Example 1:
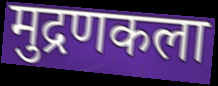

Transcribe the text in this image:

मुद्रणकला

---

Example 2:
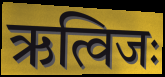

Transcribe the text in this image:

ऋत्विजः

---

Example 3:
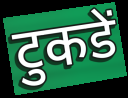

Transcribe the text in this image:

टुकडें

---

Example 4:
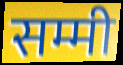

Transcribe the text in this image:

सम्मी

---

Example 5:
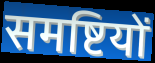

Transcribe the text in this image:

समष्टियों